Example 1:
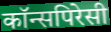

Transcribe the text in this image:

कॉन्सपिरेसी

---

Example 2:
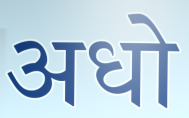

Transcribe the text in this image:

अधो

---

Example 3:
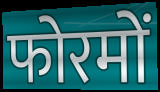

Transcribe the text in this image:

फोरमों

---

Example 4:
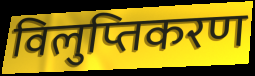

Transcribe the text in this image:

विलुप्तिकरण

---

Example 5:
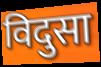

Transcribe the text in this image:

विदुसा